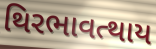
થિરભાવત્થાય